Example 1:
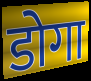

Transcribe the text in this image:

डोगा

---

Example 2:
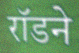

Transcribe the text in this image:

रॉडने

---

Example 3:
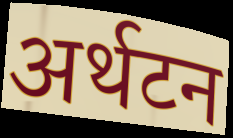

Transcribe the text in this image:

अर्थटन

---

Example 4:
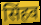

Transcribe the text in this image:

सिंहव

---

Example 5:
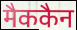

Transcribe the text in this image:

मैककैन